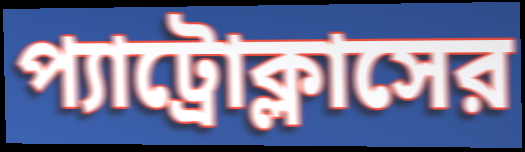
প্যাট্রোক্লাসের